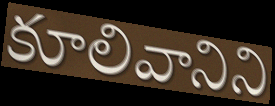
కూలివానిని